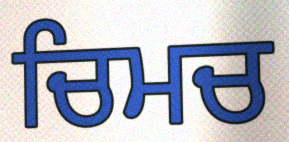
ਚਿਮਚ